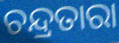
ଚନ୍ଦ୍ରତାରା